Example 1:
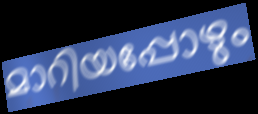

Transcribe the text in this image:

മാറിയപ്പോഴും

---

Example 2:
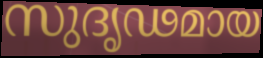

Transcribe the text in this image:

സുദൃഢമായ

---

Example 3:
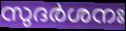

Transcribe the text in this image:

സുദർശനഃ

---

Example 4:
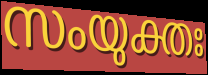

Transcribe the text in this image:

സംയുക്തഃ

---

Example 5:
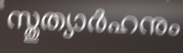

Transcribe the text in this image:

സ്തുത്യാർഹനും